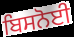
ਬਿਸਨੋਈ